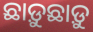
ଛାଡ଼ୁଛାଡ଼ୁ